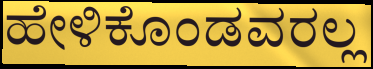
ಹೇಳಿಕೊಂಡವರಲ್ಲ